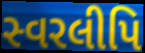
સ્વરલીપિ